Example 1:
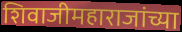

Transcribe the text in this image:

शिवाजीमहाराजांच्या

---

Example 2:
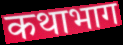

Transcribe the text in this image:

कथाभाग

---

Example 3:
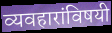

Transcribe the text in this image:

व्यवहारांविषयी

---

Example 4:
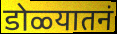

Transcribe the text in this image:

डोळ्यातनं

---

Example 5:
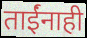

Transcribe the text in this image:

ताईंनाही